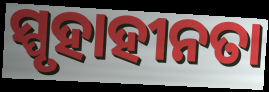
ସ୍ପୃହାହୀନତା